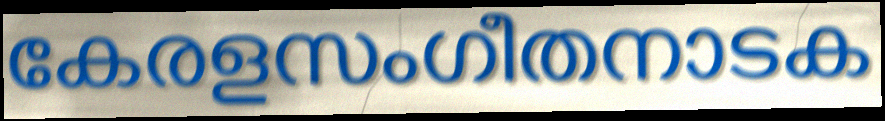
കേരളസംഗീതനാടക